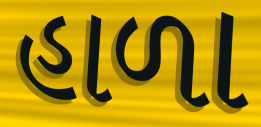
હાળા